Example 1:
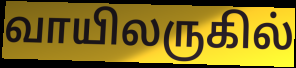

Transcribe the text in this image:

வாயிலருகில்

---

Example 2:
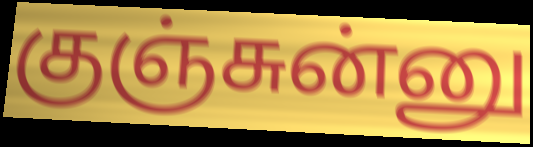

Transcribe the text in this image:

குஞ்சுன்னு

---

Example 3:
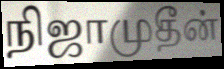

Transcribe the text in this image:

நிஜாமுதீன்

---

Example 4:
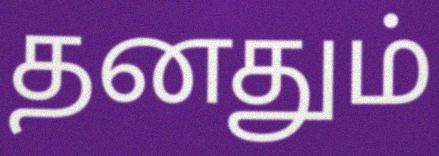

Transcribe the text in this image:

தனதும்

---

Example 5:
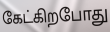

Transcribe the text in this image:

கேட்கிறபோது